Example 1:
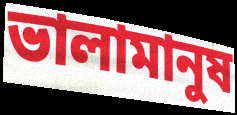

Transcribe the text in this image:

ভালামানুষ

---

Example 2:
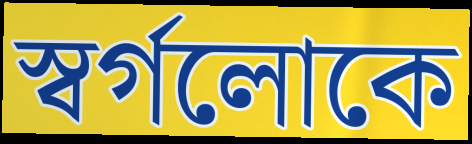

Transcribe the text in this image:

স্বর্গলোকে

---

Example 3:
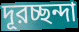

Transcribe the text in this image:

দূরচ্ছন্দা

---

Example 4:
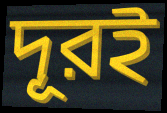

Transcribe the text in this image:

দূরই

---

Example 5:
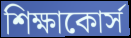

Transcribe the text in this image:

শিক্ষাকোর্স